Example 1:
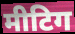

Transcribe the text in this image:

मीटिग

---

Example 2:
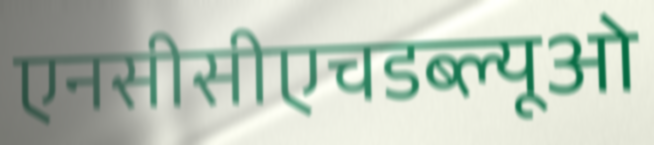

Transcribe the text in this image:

एनसीसीएचडब्ल्यूओ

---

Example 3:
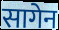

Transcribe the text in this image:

सागेन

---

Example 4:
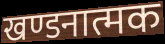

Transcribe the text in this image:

खण्डनात्मक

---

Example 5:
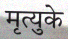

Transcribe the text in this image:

मृत्युके